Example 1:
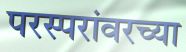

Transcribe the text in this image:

परस्परांवरच्या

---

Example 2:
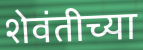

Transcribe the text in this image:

शेवंतीच्या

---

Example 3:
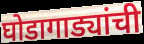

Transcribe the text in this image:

घोडागाड्यांची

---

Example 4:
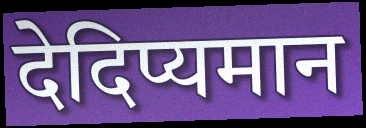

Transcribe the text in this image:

देदिप्यमान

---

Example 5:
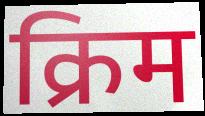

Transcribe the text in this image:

क्रिम